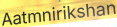
Aatmnirikshan